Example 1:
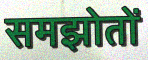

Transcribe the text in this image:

समझोतों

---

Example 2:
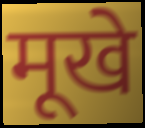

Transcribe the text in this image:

मूखे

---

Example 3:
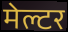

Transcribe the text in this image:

मेल्टर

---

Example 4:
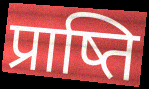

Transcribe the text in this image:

प्राष्ति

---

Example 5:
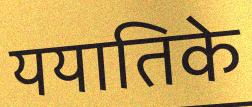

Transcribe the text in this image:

ययातिके